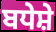
ਬਧੇਸ਼ੇ